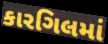
કારગિલમાં